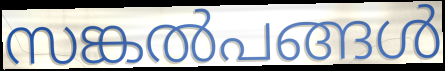
സങ്കൽപങ്ങൾ